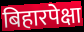
बिहारपेक्षा